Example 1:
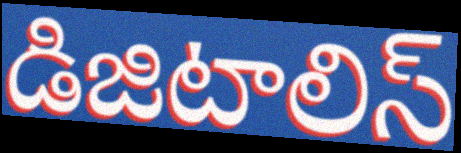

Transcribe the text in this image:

డిజిటాలిస్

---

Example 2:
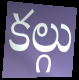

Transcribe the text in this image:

కల్గు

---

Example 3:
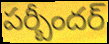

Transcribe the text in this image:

పర్బీందర్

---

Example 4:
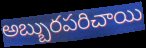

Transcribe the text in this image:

అబ్బురపరిచాయి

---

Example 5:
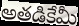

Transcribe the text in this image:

అతడికేమీ